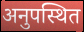
अनुपस्थित